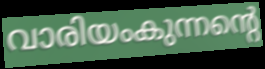
വാരിയംകുന്നന്റെ